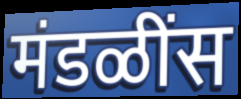
मंडळींस